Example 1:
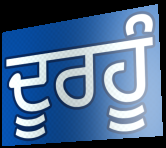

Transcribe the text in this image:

ਦੂਰਹੂੰ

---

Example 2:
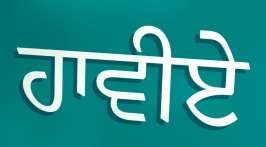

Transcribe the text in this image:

ਹਾਵੀਏ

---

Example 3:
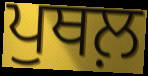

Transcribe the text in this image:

ਪੁਥਲ਼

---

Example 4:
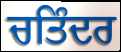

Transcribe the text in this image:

ਚਤਿੰਦਰ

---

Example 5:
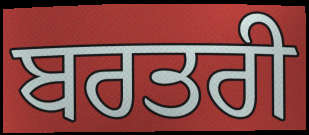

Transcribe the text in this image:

ਬਰਤਰੀ